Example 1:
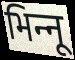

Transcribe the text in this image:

भिन्नू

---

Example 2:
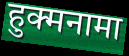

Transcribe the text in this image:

हुक्मनामा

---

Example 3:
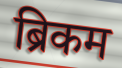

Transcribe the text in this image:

ब्रिकम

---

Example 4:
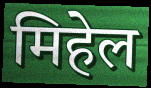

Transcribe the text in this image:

मिहेल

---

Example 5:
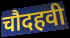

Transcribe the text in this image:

चौदहवी